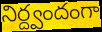
నిర్ద్వందంగా